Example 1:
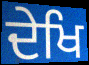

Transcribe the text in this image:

ਦੇਖਿ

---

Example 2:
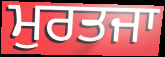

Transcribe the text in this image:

ਮੁਰਤਜਾ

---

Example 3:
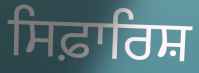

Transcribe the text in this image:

ਸਿਫ਼ਾਰਿਸ਼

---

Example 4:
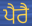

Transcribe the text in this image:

ਪੈਰੈ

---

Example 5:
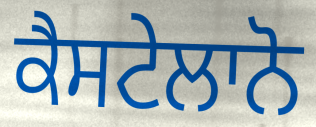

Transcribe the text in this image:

ਕੈਸਟੇਲਾਨੋ